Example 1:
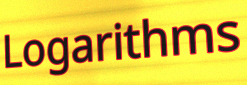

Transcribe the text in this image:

Logarithms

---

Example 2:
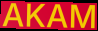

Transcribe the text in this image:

AKAM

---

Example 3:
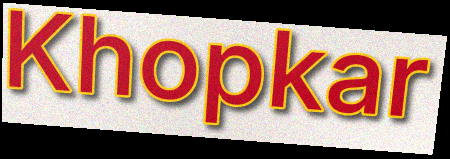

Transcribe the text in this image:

Khopkar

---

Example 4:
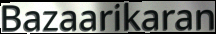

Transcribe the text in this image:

Bazaarikaran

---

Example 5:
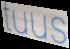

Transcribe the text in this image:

tuus